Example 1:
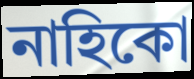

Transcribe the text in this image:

নাহিকো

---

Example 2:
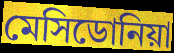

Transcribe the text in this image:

মেসিডোনিয়া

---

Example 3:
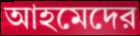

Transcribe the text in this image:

আহমেদের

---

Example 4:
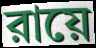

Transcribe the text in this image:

রায়ে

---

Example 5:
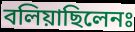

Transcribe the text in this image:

বলিয়াছিলেনঃ